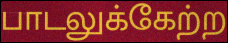
பாடலுக்கேற்ற